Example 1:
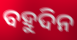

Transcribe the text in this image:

ବହୁଦିନ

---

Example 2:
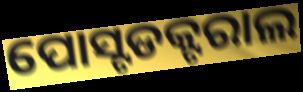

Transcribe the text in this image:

ପୋସ୍ଟଡକ୍ଟରାଲ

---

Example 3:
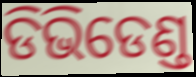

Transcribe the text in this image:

ଡିଭିଡେଣ୍ଡ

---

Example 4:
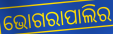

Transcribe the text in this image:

ଭୋଗରାପାଲିର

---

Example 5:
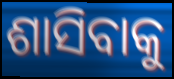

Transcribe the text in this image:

ଶାସିବାକୁ